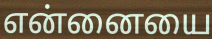
என்னையை